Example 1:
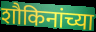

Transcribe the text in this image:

शौकिनांच्या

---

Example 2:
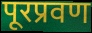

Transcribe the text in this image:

पूरप्रवण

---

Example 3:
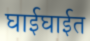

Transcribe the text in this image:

घाईघाईत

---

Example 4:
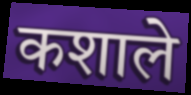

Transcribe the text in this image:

कशाले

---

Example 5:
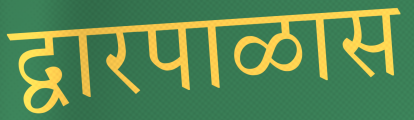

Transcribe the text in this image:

द्वारपाळास